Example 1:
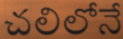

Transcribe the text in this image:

చలిలోనే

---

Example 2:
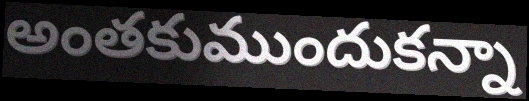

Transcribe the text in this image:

అంతకుముందుకన్నా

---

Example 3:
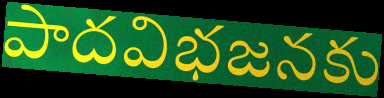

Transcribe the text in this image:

పాదవిభజనకు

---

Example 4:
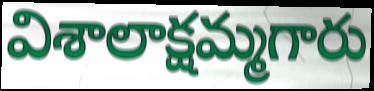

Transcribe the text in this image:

విశాలాక్షమ్మగారు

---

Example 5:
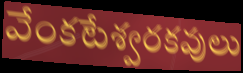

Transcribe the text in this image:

వేంకటేశ్వరకవులు